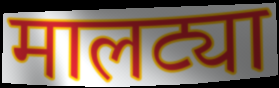
मालट्या